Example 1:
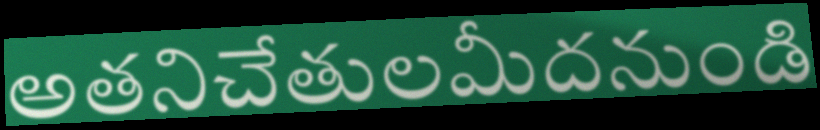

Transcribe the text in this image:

అతనిచేతులమీదనుండి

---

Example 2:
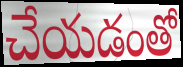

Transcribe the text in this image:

చేయడంతో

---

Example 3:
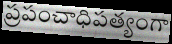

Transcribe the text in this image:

ప్రపంచాధిపత్యంగా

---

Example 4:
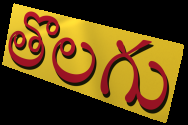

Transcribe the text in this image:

తొలగు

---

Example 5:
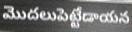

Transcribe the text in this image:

మొదలుపెట్టేడాయన